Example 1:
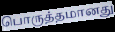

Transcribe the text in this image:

பொருத்தமானது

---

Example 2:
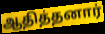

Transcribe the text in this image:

ஆதித்தனார்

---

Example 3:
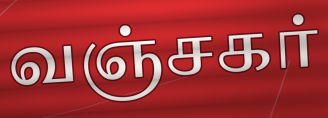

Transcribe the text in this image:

வஞ்சகர்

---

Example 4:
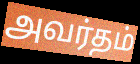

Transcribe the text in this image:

அவர்தம்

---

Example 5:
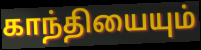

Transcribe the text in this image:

காந்தியையும்